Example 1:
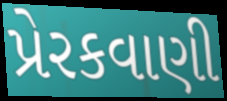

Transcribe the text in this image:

પ્રેરકવાણી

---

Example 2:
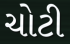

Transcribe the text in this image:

ચોટી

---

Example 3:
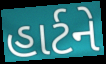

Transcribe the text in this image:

હાર્ટને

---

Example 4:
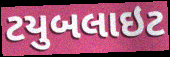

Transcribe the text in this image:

ટયુબલાઇટ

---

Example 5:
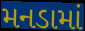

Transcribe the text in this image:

મનડામાં